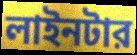
লাইনটার